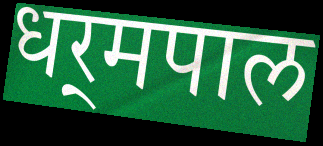
धर्मपाल